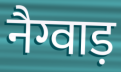
नैग्वाड़